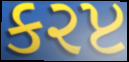
કરપ્ટ